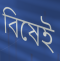
বিষেই